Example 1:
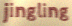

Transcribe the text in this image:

jingling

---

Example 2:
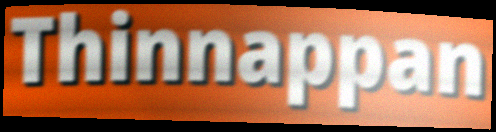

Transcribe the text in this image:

Thinnappan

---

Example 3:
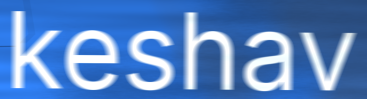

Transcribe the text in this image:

keshav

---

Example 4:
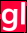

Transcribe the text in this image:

gl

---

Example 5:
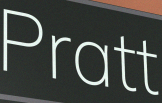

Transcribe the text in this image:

Pratt